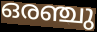
ഒരഞ്ചു